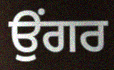
ਉਂਗਰ